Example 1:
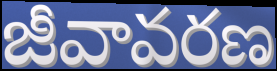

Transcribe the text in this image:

జీవావరణ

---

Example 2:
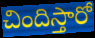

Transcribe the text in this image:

చిందిస్తారో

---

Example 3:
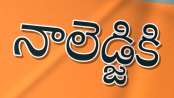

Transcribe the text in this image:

నాలెడ్జికి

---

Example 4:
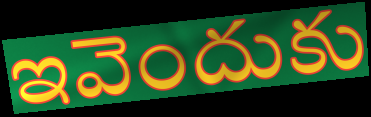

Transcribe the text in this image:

ఇవెందుకు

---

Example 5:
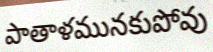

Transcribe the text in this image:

పాతాళమునకుపోవు